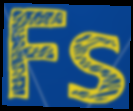
Fs